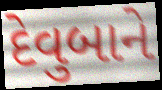
દેવુબાને